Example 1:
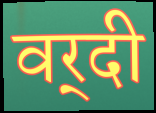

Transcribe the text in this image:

वर्दी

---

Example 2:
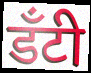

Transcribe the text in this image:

डँटी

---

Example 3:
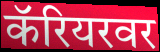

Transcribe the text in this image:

कॅरियरवर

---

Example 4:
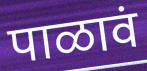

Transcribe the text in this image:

पाळावं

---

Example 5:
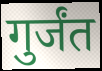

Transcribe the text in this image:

गुर्जंत